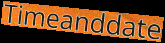
Timeanddate